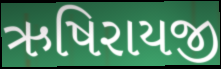
ઋષિરાયજી